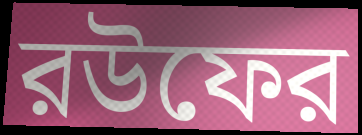
রউফের